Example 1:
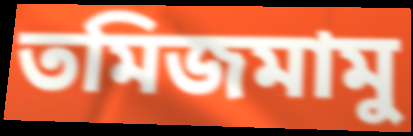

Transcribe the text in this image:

তমিজমামু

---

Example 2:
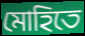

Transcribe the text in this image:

মোহিতে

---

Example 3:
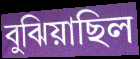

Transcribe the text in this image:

বুঝিয়াছিল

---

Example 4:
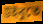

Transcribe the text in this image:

উইবুতে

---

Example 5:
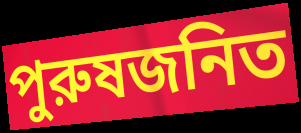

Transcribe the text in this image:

পুরুষজনিত